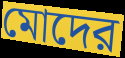
মোদের